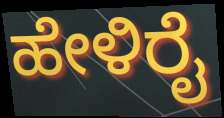
ಹೇಳಿರೈ